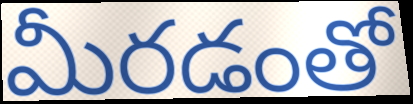
మీరడంతో